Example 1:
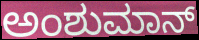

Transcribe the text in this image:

ಅಂಶುಮಾನ್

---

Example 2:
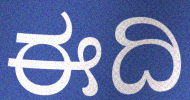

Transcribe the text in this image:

ಈದಿ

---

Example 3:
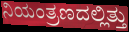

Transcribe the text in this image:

ನಿಯಂತ್ರಣದಲ್ಲಿತ್ತು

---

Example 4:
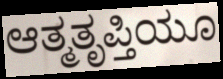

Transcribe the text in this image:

ಆತ್ಮತೃಪ್ತಿಯೂ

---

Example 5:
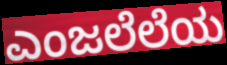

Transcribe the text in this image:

ಎಂಜಲೆಲೆಯ